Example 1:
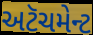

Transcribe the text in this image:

અટૅચમેન્ટ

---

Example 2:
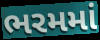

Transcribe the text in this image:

ભરમમાં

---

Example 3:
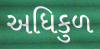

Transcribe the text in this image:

અધિકુળ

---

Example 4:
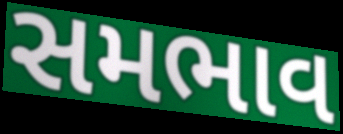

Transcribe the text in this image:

સમભાવ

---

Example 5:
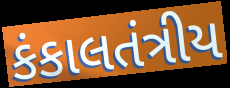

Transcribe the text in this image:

કંકાલતંત્રીય